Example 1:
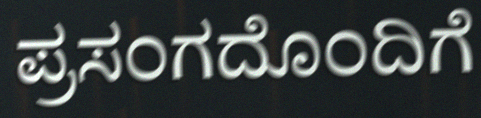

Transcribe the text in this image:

ಪ್ರಸಂಗದೊಂದಿಗೆ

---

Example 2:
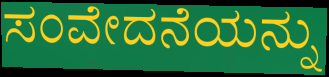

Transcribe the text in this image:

ಸಂವೇದನೆಯನ್ನು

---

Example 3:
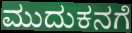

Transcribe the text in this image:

ಮುದುಕನಗೆ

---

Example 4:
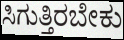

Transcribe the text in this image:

ಸಿಗುತ್ತಿರಬೇಕು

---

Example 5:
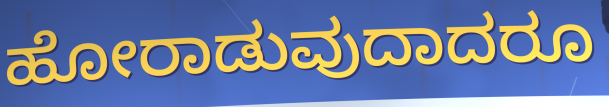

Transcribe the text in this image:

ಹೋರಾಡುವುದಾದರೂ